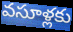
వసూళ్లకు